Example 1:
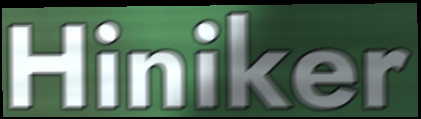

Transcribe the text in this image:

Hiniker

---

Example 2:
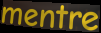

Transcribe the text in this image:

mentre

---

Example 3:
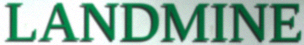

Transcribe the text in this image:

LANDMINE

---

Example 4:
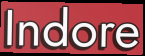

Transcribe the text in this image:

Indore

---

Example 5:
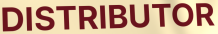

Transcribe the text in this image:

DISTRIBUTOR